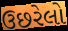
ઉછરેલો